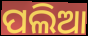
ପଲିଆ